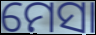
ମେସା